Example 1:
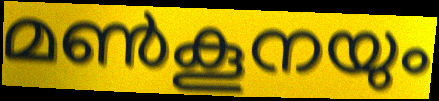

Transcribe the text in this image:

മൺകൂനയും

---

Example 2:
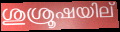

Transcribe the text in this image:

ശുശ്രൂഷയില്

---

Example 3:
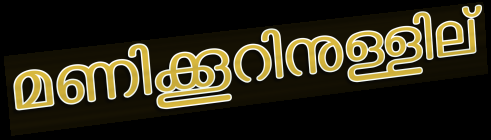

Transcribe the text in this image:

മണിക്കൂറിനുള്ളില്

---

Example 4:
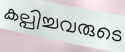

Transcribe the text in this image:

കല്പിച്ചവരുടെ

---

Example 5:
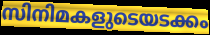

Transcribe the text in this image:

സിനിമകളുടെയടക്കം